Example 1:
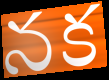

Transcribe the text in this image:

నక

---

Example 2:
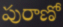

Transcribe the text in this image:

పురాణో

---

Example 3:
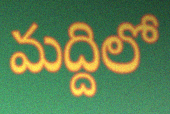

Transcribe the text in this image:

మద్దిలో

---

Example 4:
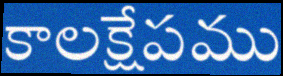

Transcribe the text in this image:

కాలక్షేపము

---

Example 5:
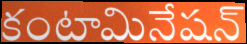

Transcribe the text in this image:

కంటామినేషన్